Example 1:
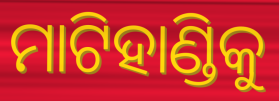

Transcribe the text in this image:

ମାଟିହାଣ୍ଡିକୁ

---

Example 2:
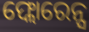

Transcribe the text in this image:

ଫ୍ଲୋରେନ୍ସ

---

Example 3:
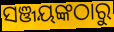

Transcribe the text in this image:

ସଞ୍ଜୟଙ୍କଠାରୁ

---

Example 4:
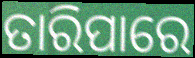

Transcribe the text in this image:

ତାରିପାରେ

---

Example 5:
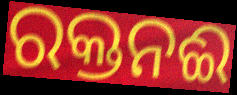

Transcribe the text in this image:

ରକ୍ତନଈ